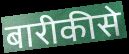
बारीकीसे